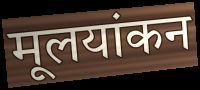
मूलयांकन